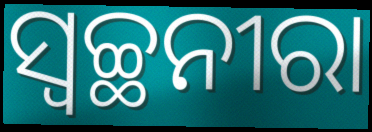
ସ୍ବଚ୍ଛନୀରା